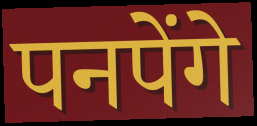
पनपेंगे